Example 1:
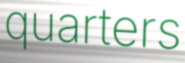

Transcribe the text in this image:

quarters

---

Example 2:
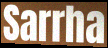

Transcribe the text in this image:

Sarrha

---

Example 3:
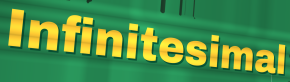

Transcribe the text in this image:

Infinitesimal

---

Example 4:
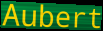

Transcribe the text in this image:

Aubert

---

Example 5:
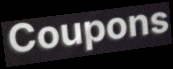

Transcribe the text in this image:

Coupons